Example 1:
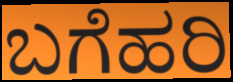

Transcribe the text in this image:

ಬಗೆಹರಿ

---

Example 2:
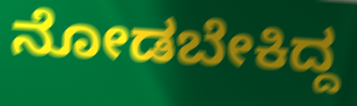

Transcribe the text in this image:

ನೋಡಬೇಕಿದ್ದ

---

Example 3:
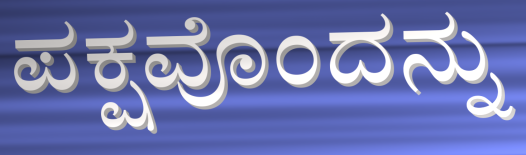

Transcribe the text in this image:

ಪಕ್ಷವೊಂದನ್ನು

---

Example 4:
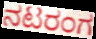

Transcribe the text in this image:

ನಟರಂಗ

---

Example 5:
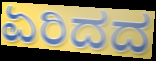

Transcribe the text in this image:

ಏರಿದದ